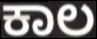
ಕಾಲ